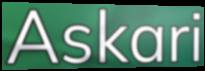
Askari